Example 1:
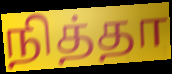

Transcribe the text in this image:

நித்தா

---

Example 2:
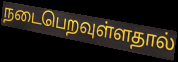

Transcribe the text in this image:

நடைபெறவுள்ளதால்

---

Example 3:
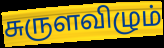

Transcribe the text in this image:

சுருளவிழும்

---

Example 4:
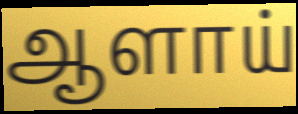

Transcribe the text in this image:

ஆளாய்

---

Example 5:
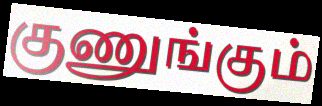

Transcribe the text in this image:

குணுங்கும்